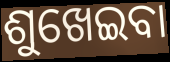
ଶୁଖେଇବା